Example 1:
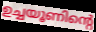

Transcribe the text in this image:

ഉച്ചയൂണിന്റെ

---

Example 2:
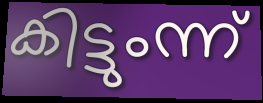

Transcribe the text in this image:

കിട്ടുംന്ന്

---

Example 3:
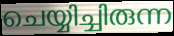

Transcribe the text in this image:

ചെയ്യിച്ചിരുന്ന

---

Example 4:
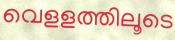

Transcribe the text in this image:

വെളളത്തിലൂടെ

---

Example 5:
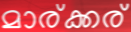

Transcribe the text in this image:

മാര്ക്കര്